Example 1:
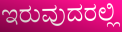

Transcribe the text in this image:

ಇರುವುದರಲ್ಲಿ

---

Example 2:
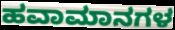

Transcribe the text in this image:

ಹವಾಮಾನಗಳ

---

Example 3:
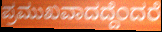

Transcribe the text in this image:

ಪ್ರಮುಖವಾದದ್ದೆಂದರೆ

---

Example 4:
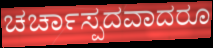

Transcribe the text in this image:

ಚರ್ಚಾಸ್ಪದವಾದರೂ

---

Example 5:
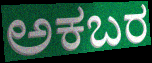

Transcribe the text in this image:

ಅಕಬರ